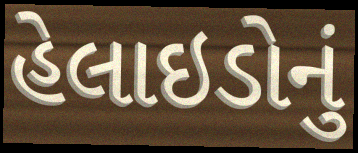
હેલાઇડોનું